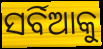
ସର୍ବିଆକୁ